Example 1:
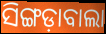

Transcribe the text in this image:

ସିଙ୍ଗଡ଼ାବାଲା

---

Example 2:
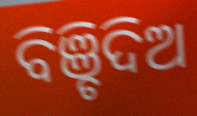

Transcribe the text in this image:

ବିଞ୍ଚିଦିଅ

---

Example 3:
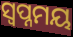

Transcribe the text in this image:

ସ୍ଵପ୍ନମୟ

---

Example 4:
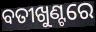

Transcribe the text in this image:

ବତୀଖୁଣ୍ଟରେ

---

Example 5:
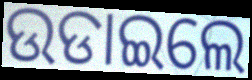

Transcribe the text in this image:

ଉଡାଇଲେ